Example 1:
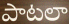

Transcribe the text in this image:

పాటలా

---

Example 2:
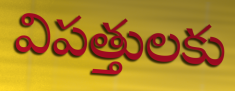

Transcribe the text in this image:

విపత్తులకు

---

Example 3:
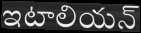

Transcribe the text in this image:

ఇటాలియన్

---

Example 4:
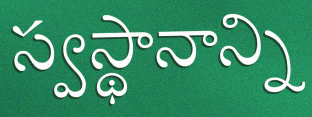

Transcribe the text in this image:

స్వస్థానాన్ని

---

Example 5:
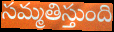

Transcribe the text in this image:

సమ్మతిస్తుంది